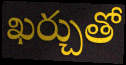
ఖర్చుతో